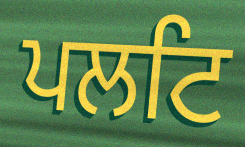
ਪਲਟਿ